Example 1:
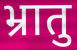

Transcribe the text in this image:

भ्रातु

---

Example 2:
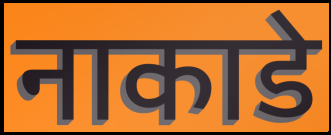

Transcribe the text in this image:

नाकाडे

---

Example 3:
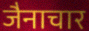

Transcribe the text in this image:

जैनाचार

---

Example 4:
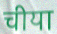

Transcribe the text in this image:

चीया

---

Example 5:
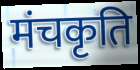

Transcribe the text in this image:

मंचकृति